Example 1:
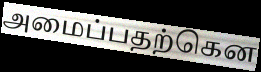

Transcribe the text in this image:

அமைப்பதற்கென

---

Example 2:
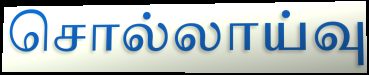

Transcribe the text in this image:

சொல்லாய்வு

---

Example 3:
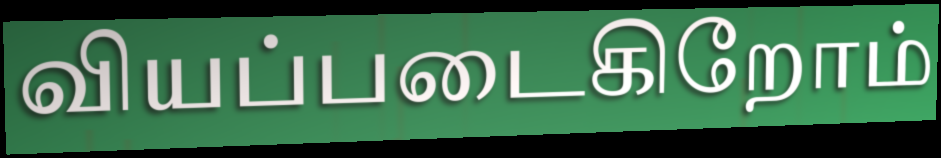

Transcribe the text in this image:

வியப்படைகிறோம்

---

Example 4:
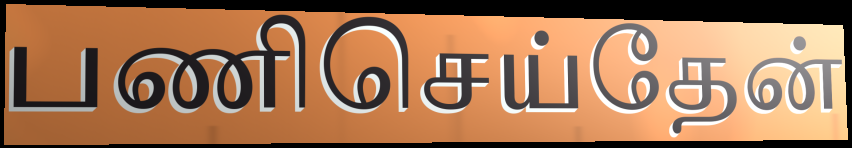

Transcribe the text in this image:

பணிசெய்தேன்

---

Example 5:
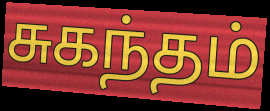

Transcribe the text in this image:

சுகந்தம்